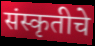
संस्कृतीचे